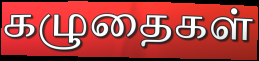
கழுதைகள்